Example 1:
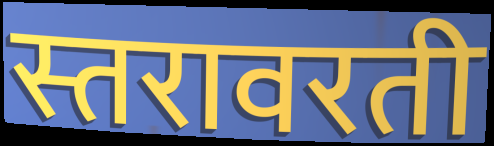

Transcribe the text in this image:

स्तरावरती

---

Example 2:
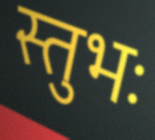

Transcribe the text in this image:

स्तुभः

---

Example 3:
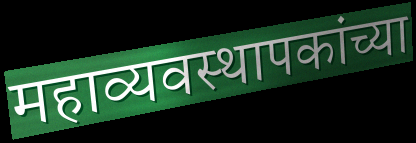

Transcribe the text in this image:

महाव्यवस्थापकांच्या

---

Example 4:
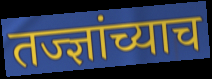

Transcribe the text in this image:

तज्ज्ञांच्याच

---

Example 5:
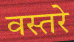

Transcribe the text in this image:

वस्तरे